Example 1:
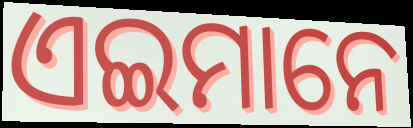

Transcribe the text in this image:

ଏଇମାନେ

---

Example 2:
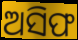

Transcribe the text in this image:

ଅସିଫ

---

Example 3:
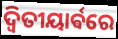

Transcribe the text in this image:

ଦ୍ଵିତୀୟାର୍ଵରେ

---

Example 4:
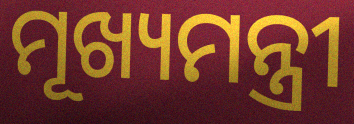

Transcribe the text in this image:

ମୂଖ୍ୟମନ୍ତ୍ରୀ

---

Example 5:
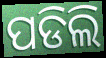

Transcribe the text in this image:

ପଡିଲି